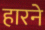
हारने